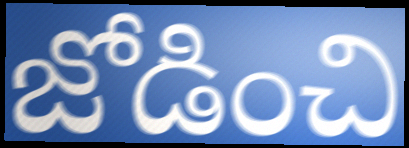
జోడించి